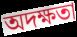
অদক্ষতা